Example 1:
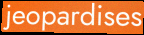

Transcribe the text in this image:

jeopardises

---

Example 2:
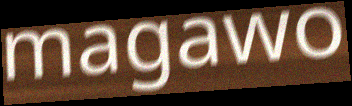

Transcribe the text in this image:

magawo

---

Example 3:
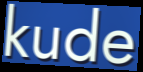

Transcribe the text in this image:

kude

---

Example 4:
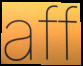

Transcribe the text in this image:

aff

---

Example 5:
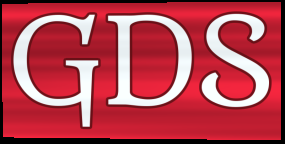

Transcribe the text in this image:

GDS